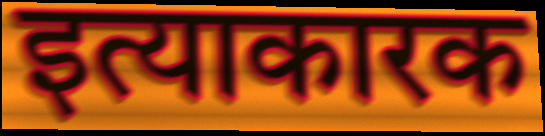
इत्याकारक